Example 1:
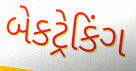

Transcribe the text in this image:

બેકટ્રેકિંગ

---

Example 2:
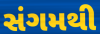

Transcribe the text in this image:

સંગમથી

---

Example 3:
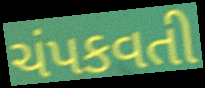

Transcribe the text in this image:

ચંપકવતી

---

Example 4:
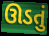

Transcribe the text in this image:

ઊડતું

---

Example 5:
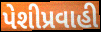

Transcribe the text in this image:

પેશીપ્રવાહી